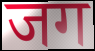
जग